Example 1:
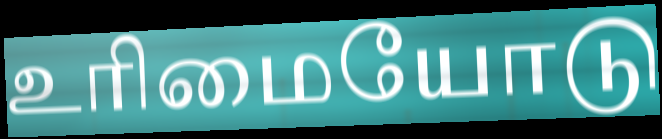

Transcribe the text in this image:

உரிமையோடு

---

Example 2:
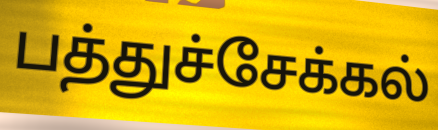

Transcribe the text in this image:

பத்துச்சேக்கல்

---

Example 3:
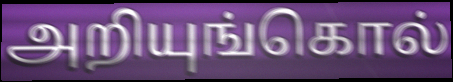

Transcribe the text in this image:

அறியுங்கொல்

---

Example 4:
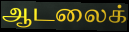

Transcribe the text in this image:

ஆடலைக்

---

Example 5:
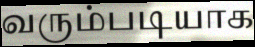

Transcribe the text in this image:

வரும்படியாக